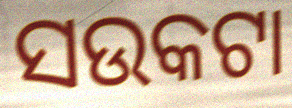
ସଉକଟା